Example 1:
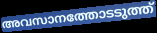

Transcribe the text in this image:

അവസാനത്തോടടുത്ത്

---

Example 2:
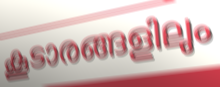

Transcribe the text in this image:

കൂടാരങ്ങളിലും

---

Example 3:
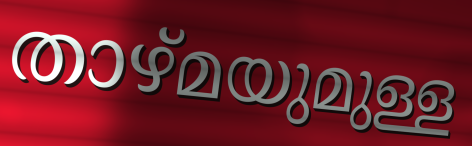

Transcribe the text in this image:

താഴ്മയുമുള്ള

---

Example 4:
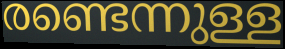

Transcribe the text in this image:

രണ്ടെന്നുള്ള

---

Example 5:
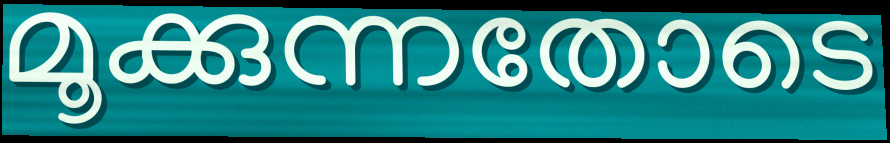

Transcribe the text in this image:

മൂക്കുന്നതോടെ